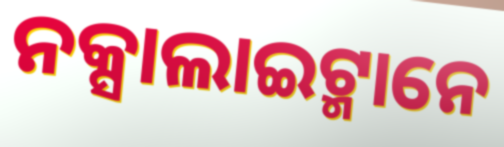
ନକ୍ସାଲାଇଟ୍ମାନେ